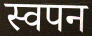
स्वपन